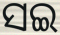
ସଇ